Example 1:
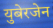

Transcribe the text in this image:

युबेरजेन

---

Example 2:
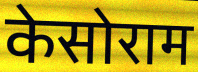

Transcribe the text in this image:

केसोराम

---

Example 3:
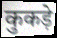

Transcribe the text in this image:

कुकड़े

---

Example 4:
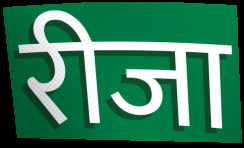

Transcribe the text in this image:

रीजा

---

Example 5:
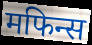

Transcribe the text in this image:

मफिन्स